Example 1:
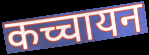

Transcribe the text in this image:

कच्चायन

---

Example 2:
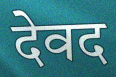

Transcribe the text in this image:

देवद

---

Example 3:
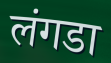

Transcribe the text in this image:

लंगडा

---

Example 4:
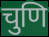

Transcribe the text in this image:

चुणि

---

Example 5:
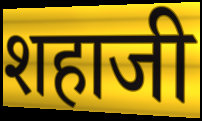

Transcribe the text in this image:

शहाजी